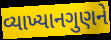
વ્યાખ્યાનગુણને